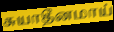
சுயாதீனமாய்